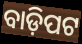
ବାଡ଼ିପଟ